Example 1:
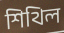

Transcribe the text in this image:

শিথিল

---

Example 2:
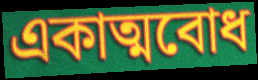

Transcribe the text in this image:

একাত্মবোধ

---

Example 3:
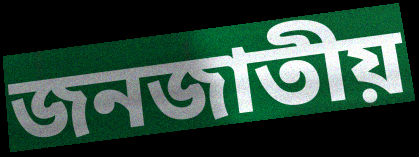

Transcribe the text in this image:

জনজাতীয়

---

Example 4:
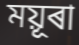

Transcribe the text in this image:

ময়ূৰা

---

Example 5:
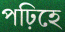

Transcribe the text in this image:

পঢ়িহে